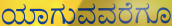
ಯಾಗುವವರೆಗೂ